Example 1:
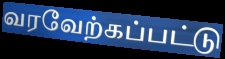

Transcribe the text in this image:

வரவேற்கப்பட்டு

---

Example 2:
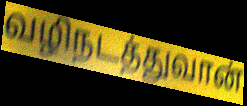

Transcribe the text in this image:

வழிநடத்துவான்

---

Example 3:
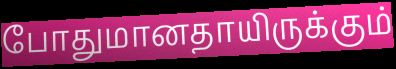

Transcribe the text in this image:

போதுமானதாயிருக்கும்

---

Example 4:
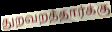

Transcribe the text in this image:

துறவறத்தார்க்கு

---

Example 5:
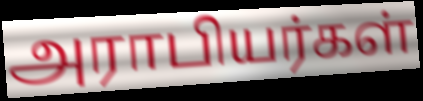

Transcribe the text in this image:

அராபியர்கள்